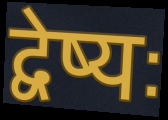
द्वेष्यः